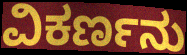
ವಿಕರ್ಣನು